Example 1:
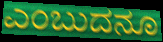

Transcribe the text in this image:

ಎಂಬುದನೂ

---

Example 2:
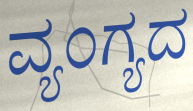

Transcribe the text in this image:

ವ್ಯಂಗ್ಯದ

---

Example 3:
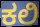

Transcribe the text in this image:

ಕಲಿ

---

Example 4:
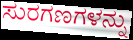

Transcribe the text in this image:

ಸುರಗಣಗಳನ್ನು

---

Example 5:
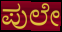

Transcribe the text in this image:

ಪುಲೇ